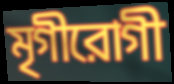
মৃগীরোগী